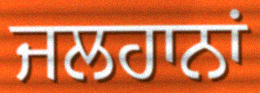
ਜਲਹਾਨਾਂ